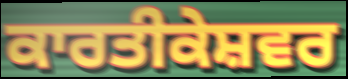
ਕਾਰਤੀਕੇਸ਼ਵਰ